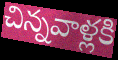
చిన్నవాళ్లకి